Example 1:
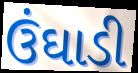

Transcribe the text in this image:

ઉંઘાડી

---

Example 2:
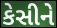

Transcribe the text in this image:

કેસીને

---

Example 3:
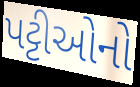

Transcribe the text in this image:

પટ્ટીઓનો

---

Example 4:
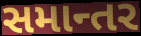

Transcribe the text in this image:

સમાન્તર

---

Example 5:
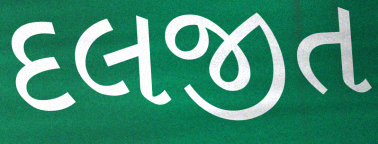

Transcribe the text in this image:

દલજીત